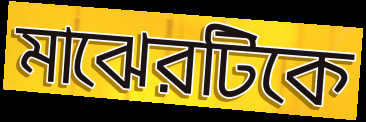
মাঝেরটিকে